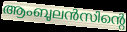
ആംബുലൻസിന്റെ